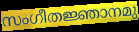
സംഗീതജ്ഞാനമു